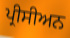
ਪ੍ਰੀਸੀਅਨ